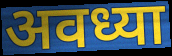
अवध्या